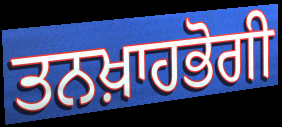
ਤਨਖ਼ਾਹਭੋਗੀ